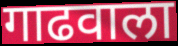
गाढवाला